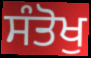
ਸੰਤੋਖੁ